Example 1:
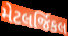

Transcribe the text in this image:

મેટલર્જિકલ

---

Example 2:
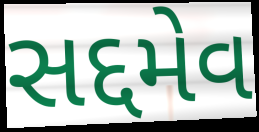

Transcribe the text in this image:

સદ્દમેવ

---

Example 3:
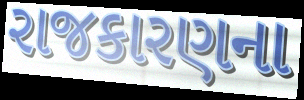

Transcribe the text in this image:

રાજકારણના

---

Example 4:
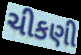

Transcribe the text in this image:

ચીકણી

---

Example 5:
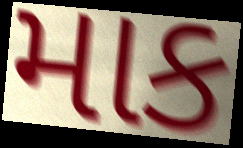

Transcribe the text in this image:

માક